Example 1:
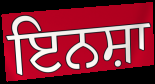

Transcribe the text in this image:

ਇਨਸ਼ਾ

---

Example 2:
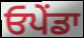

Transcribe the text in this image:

ਓਪੇਂਡਾ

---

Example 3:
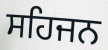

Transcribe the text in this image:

ਸਹਿਜਨ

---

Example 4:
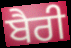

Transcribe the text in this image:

ਬੈਰੀ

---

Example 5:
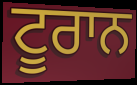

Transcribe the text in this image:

ਟੂਰਾਨ